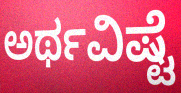
ಅರ್ಥವಿಷ್ಟೆ